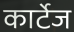
कार्टेज